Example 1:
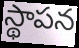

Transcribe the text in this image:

స్థాపన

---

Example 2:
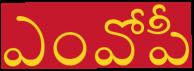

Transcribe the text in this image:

ఎంవోపీ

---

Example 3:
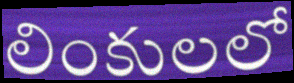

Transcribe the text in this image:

లింకులలో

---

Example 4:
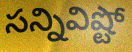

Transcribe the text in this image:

సన్నివిష్టో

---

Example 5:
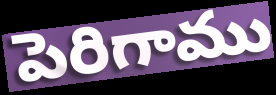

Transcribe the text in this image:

పెరిగాము